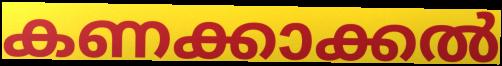
കണക്കാക്കൽ